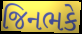
જિનભકે